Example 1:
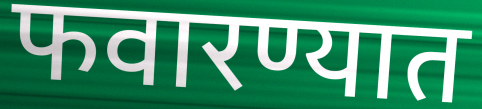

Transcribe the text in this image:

फवारण्यात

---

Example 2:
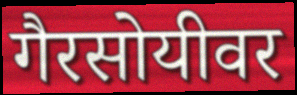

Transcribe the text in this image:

गैरसोयीवर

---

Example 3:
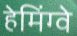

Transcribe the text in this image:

हेमिंग्वे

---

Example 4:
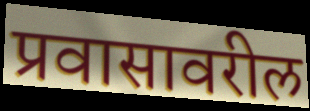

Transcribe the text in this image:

प्रवासावरील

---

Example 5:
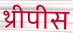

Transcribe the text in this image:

थ्रीपीस